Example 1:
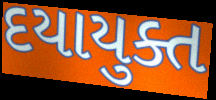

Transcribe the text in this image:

દયાયુક્ત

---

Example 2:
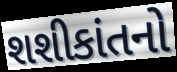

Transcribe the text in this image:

શશીકાંતનો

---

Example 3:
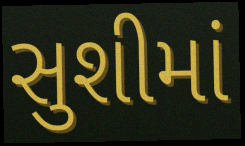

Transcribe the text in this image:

સુશીમાં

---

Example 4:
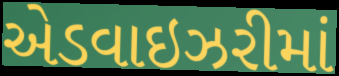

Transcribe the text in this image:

એડવાઇઝરીમાં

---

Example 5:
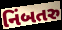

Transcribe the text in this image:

નિંબતરુ